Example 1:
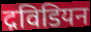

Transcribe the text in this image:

द्रविडियन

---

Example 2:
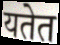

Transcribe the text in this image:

यतेत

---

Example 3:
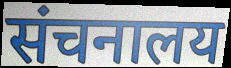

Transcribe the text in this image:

संचनालय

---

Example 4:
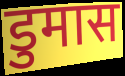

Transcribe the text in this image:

डुमास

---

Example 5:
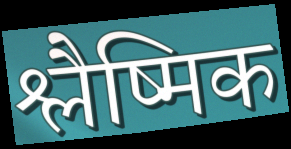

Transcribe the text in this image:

श्लैष्मिक